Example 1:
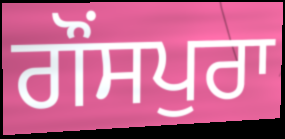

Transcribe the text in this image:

ਗੌਂਸਪੁਰਾ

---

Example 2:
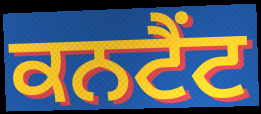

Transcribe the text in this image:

ਕਨਟੈਂਟ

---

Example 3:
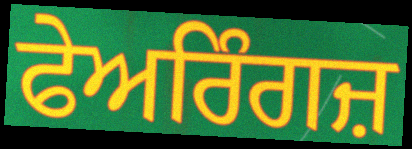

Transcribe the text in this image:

ਫੇਅਰਿੰਗਜ਼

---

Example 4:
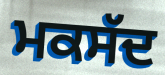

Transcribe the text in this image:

ਮਕਸੱਦ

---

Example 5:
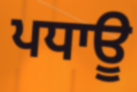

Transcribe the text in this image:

ਪਧਾਊ